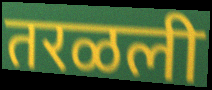
तरळली